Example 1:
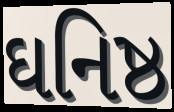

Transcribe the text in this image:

ઘનિષ્ઠ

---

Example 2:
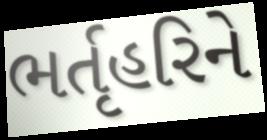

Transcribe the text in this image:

ભર્તૃહરિને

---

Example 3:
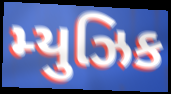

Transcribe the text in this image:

મ્યુઝિક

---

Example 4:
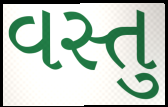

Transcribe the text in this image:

વસ્તુ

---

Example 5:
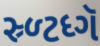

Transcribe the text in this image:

સ્ર્ળ્ટધ્ગૅ